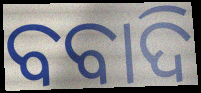
ବବାଦି